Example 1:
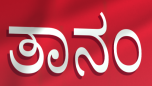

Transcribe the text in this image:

ತಾನಂ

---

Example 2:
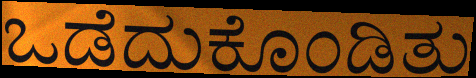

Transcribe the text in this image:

ಒಡೆದುಕೊಂಡಿತು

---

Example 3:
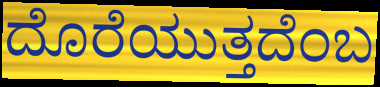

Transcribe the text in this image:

ದೊರೆಯುತ್ತದೆಂಬ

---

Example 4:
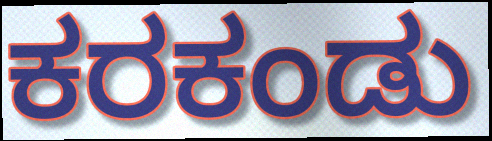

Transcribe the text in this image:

ಕರಕಂಡು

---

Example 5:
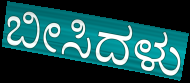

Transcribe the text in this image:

ಬೀಸಿದಳು